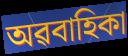
অৱবাহিকা